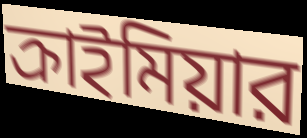
ক্রাইমিয়ার